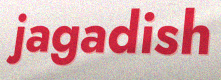
jagadish